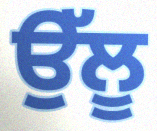
ਉੱਲੂ